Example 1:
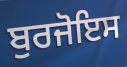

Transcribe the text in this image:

ਬੁਰਜੋਇਸ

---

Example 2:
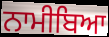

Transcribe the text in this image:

ਨਾਮੀਬਿਆ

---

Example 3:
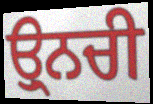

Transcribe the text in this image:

ਉ੍ਨਚੀ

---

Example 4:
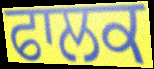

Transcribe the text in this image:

ਫਾਲਕ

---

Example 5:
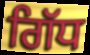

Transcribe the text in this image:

ਗਿੱਧ